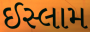
ઈસ્લામ